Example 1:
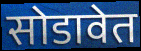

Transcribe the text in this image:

सोडावेत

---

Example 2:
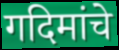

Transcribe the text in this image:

गदिमांचे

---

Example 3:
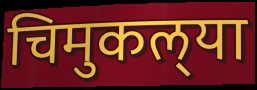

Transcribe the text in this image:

चिमुकल्या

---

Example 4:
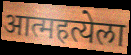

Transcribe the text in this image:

आत्महत्येला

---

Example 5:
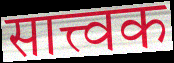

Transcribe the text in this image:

सात्त्वक